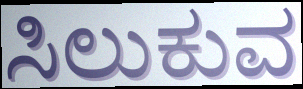
ಸಿಲುಕುವ